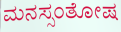
ಮನಸ್ಸಂತೋಷ